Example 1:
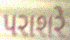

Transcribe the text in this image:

પરાશરે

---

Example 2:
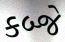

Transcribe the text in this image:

કબ્જે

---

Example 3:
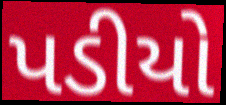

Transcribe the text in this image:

પડીયો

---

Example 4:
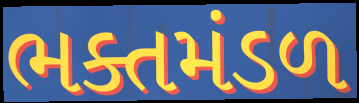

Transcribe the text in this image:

ભક્તમંડળ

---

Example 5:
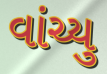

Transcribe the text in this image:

વાંચ્યુ